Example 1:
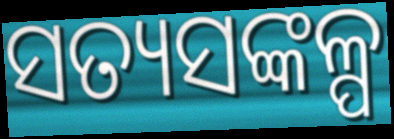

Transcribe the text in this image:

ସତ୍ୟସଙ୍କଳ୍ପ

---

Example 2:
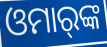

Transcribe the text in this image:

ଓମାର୍‌ଙ୍କ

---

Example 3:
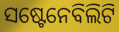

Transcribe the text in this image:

ସଷ୍ଟେନେବିଲିଟି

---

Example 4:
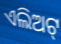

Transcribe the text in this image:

ଏଲିଅଟ୍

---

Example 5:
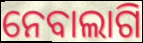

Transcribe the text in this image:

ନେବାଲାଗି